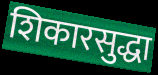
शिकारसुद्धा